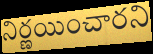
నిర్ణయించారని